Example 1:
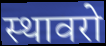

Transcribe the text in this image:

स्थावरो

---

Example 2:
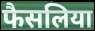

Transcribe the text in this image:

फैसलिया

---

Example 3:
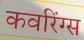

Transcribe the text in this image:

कवरिंग्स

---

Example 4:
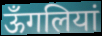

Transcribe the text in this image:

ऊँगलियां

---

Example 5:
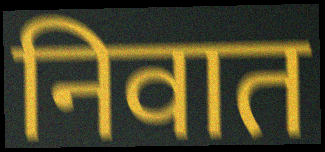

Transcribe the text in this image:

निवात